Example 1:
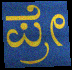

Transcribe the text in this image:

ಪ್ರೇ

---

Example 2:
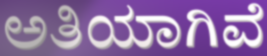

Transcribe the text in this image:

ಅತಿಯಾಗಿವೆ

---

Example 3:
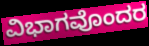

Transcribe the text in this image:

ವಿಭಾಗವೊಂದರ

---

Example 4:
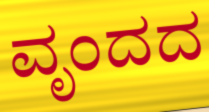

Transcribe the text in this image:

ವೃಂದದ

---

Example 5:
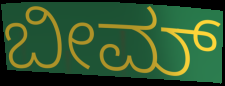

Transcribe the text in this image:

ಬೀಮ್